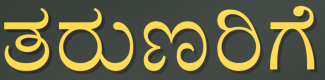
ತರುಣರಿಗೆ